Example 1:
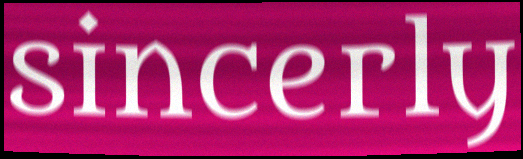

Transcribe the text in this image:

sincerly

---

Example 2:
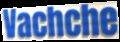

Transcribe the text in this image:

Vachche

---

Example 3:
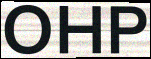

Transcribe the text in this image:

OHP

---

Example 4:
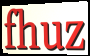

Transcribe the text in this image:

fhuz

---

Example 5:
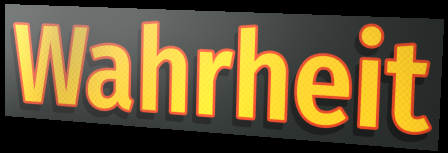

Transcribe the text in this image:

Wahrheit